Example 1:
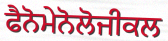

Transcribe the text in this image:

ਫੈਨੋਮੇਨੋਲੋਜੀਕਲ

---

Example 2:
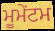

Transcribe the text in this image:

ਮੂਮੇਂਟਮ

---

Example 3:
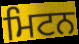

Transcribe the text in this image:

ਮਿਟਨ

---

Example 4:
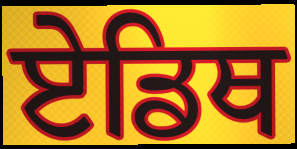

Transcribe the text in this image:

ਏਡਿਥ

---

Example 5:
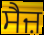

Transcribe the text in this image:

ਸੈਜ਼